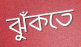
ঝুঁকতে